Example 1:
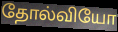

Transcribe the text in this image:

தோல்வியோ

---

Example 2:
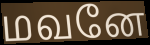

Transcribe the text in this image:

மவனே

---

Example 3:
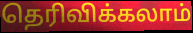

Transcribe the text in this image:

தெரிவிக்கலாம்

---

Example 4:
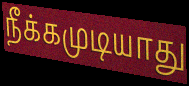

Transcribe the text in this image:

நீக்கமுடியாது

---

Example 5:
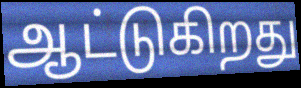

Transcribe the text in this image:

ஆட்டுகிறது